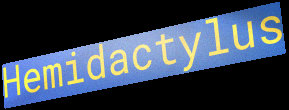
Hemidactylus